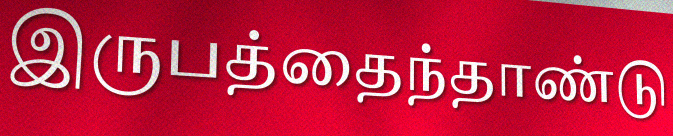
இருபத்தைந்தாண்டு